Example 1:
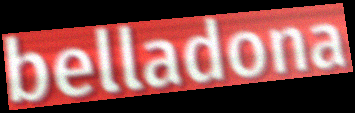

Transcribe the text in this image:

belladona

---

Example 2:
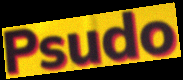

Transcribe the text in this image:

Psudo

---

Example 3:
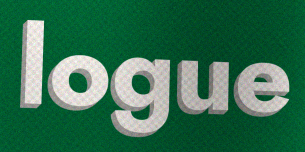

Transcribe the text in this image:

logue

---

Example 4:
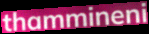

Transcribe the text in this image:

thammineni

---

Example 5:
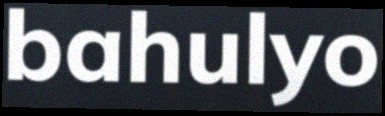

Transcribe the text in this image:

bahulyo